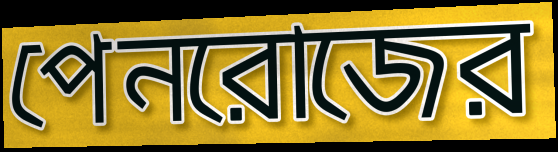
পেনরোজের